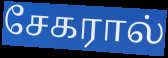
சேகரால்